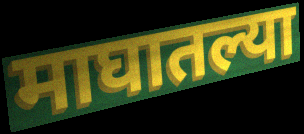
माघातल्या